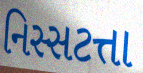
નિસ્સટત્તા